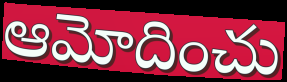
ఆమోదించు